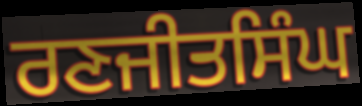
ਰਣਜੀਤਸਿੰਘ